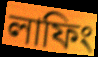
লাফিং